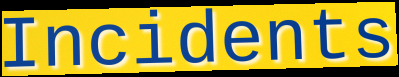
Incidents